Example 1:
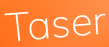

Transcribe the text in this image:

Taser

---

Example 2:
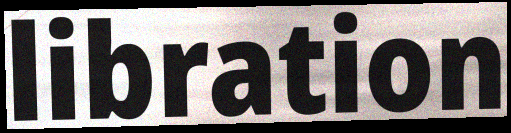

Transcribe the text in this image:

libration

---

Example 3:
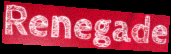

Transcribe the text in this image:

Renegade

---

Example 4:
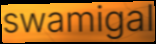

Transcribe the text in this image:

swamigal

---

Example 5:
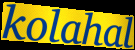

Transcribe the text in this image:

kolahal